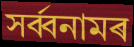
সৰ্ব্বনামৰ